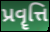
પ્રવૄત્તિ